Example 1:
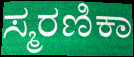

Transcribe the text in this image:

ಸ್ಮರಣಿಕಾ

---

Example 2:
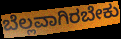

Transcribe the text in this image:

ಬೆಲ್ಲವಾಗಿರಬೇಕು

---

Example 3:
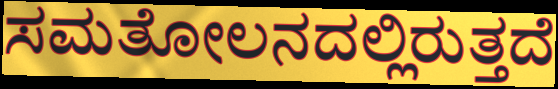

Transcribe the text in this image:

ಸಮತೋಲನದಲ್ಲಿರುತ್ತದೆ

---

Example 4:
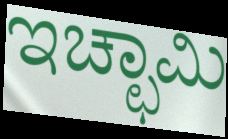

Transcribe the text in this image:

ಇಚ್ಛಾಮಿ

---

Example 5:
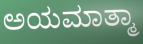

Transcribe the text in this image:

ಅಯಮಾತ್ಮಾ